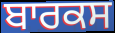
ਬਾਰਕਸ